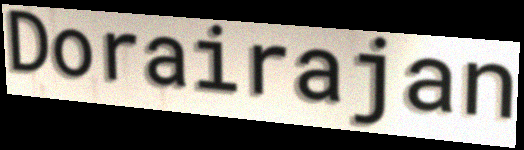
Dorairajan